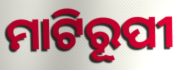
ମାଟିରୂପୀ